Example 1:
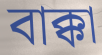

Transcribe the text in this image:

বাক্কা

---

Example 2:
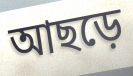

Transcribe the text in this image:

আছড়ে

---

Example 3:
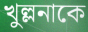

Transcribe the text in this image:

খুল্লনাকে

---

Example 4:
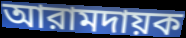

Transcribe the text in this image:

আরামদায়ক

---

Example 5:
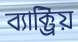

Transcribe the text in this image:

ব্যাক্ট্রিয়